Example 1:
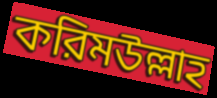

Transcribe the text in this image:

করিমউল্লাহ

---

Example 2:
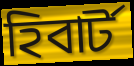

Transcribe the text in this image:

হিবার্ট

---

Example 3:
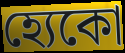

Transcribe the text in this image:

হ্যেকো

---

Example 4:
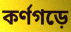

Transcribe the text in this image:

কর্ণগড়ে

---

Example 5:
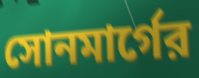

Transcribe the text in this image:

সোনমার্গের